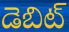
డెబిట్